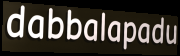
dabbalapadu